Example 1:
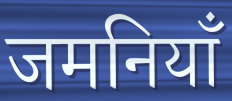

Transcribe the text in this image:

जमनियाँ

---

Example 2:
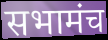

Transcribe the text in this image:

सभामंच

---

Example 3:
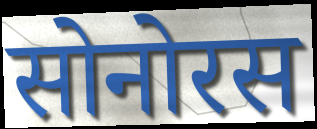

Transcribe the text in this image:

सोनोरस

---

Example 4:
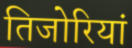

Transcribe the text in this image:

तिजोरियां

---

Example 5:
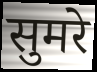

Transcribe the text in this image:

सुमरे